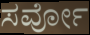
ಸರ್ವೋ